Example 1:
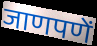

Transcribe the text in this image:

जाणपणें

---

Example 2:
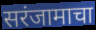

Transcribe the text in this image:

सरंजामाचा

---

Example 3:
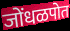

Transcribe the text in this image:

जोंधळपोत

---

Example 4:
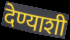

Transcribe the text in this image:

देण्याशी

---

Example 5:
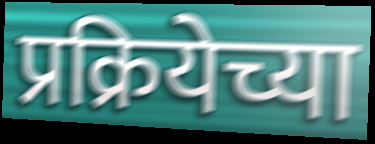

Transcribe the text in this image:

प्रक्रियेच्या